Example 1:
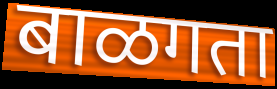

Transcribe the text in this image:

बाळगता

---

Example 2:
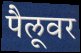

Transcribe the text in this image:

पैलूवर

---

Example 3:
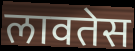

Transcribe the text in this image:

लावतेस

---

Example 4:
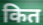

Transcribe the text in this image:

कित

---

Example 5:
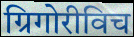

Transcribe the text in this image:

ग्रिगोरीविच